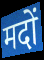
मदों